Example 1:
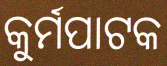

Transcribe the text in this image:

କୁର୍ମପାଟକ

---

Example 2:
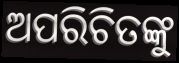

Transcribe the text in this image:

ଅପରିଚିତଙ୍କୁ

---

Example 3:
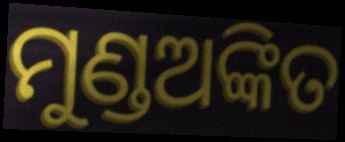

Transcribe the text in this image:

ମୁଣ୍ଡଅଙ୍କିତ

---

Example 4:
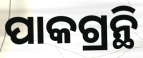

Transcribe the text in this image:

ପାକଗ୍ରନ୍ଥି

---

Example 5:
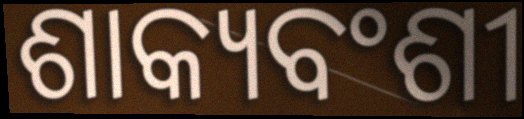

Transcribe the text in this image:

ଶାକ୍ୟବଂଶୀ